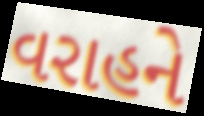
વરાહને